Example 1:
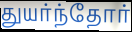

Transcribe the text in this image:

துயர்ந்தோர்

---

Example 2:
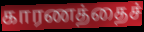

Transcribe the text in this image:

காரணத்தைச்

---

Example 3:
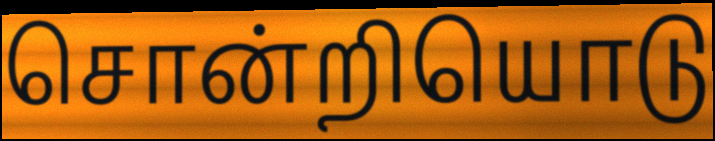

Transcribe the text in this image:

சொன்றியொடு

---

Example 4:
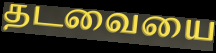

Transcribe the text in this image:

தடவையை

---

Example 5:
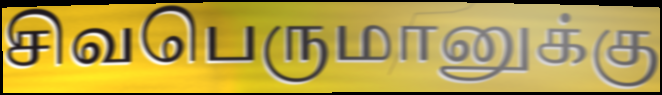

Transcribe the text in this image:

சிவபெருமானுக்கு